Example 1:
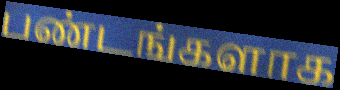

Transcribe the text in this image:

பண்டங்களாக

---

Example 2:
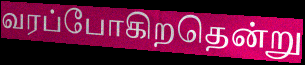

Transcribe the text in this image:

வரப்போகிறதென்று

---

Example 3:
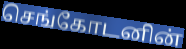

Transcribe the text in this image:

செங்கோடனின்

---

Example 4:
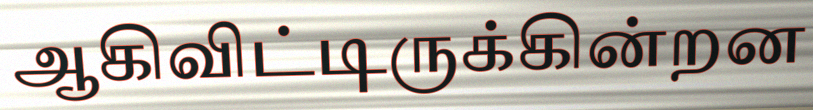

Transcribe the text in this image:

ஆகிவிட்டிருக்கின்றன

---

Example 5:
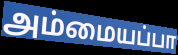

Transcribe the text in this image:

அம்மையப்பா